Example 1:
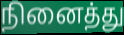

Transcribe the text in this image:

நினைத்து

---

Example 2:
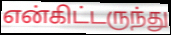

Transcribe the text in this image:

என்கிட்டருந்து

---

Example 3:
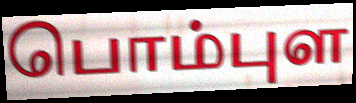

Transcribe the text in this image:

பொம்புள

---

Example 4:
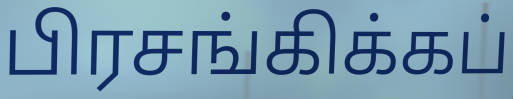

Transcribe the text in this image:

பிரசங்கிக்கப்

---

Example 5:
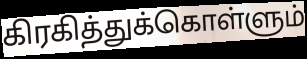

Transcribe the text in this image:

கிரகித்துக்கொள்ளும்